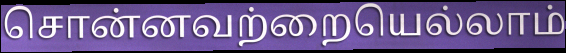
சொன்னவற்றையெல்லாம்